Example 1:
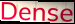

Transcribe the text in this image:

Dense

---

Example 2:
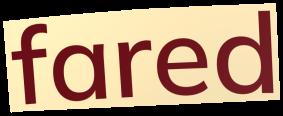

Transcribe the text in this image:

fared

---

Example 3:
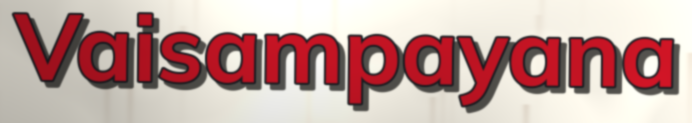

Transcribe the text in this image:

Vaisampayana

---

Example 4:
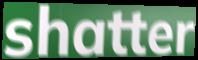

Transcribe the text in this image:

shatter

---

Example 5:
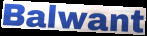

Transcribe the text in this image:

Balwant